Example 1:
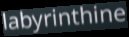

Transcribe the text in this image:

labyrinthine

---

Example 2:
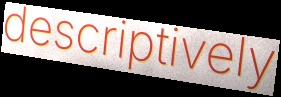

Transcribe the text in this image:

descriptively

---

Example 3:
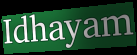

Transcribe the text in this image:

Idhayam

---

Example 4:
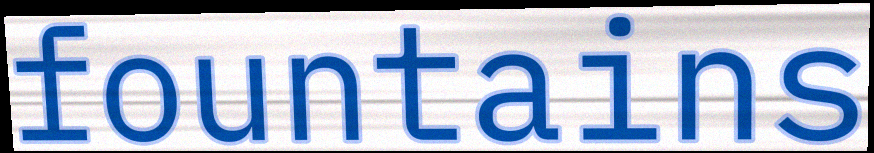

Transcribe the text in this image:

fountains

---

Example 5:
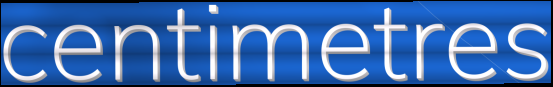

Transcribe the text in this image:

centimetres